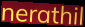
nerathil